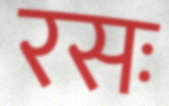
रसः